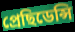
প্ৰেছিডেন্সি